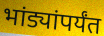
भांड्यांपर्यंत